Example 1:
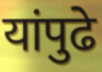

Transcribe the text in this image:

यांपुढे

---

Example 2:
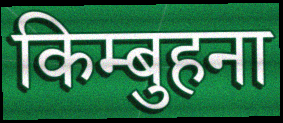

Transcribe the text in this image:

किम्बुहना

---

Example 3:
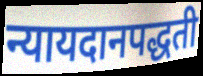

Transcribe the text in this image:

न्यायदानपद्धती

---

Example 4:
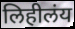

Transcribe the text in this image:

लिहीलंय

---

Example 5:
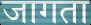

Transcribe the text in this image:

जागता